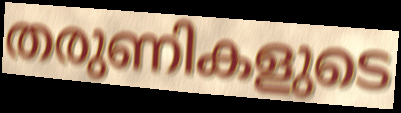
തരുണികളുടെ